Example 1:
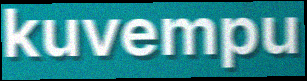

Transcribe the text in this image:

kuvempu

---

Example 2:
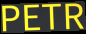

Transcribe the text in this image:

PETR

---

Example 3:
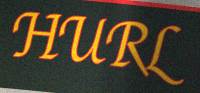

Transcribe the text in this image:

HURL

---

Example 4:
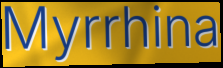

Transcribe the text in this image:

Myrrhina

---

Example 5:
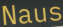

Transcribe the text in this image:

Naus